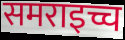
समराइच्च